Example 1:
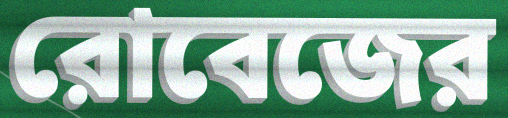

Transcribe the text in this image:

রোবেজের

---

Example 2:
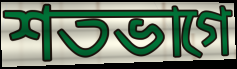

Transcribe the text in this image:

শতভাগে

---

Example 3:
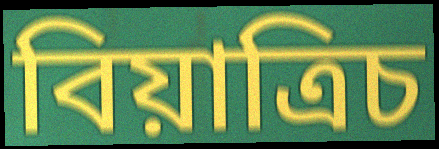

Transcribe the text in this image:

বিয়াত্রিচ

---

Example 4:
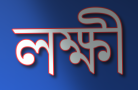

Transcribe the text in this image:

লক্ষী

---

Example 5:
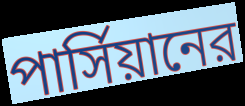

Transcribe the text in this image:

পার্সিয়ানের